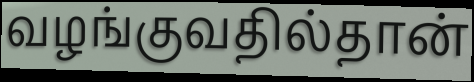
வழங்குவதில்தான்